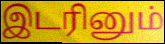
இடரினும்